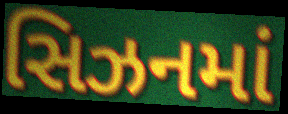
સિઝનમાં